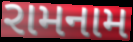
રામનામ